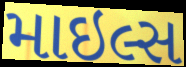
માઇલ્સ